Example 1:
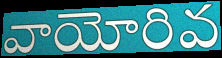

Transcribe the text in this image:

వాయోరివ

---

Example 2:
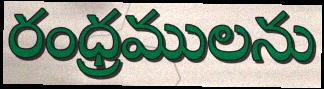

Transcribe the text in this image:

రంధ్రములను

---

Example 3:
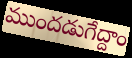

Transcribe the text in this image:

ముందడుగేద్దాం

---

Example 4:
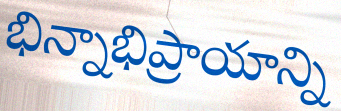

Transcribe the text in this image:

భిన్నాభిప్రాయాన్ని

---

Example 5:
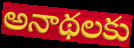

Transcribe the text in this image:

అనాథలకు